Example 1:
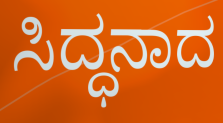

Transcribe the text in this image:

ಸಿದ್ಧನಾದ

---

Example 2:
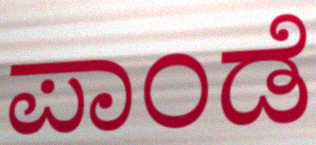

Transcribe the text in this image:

ಪಾಂಡೆ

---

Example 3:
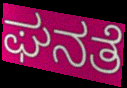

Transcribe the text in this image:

ಘನತೆ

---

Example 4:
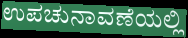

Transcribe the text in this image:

ಉಪಚುನಾವಣೆಯಲ್ಲಿ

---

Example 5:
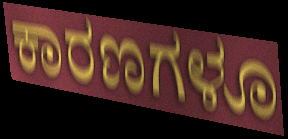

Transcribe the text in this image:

ಕಾರಣಗಳೂ